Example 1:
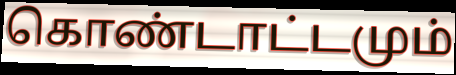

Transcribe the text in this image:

கொண்டாட்டமும்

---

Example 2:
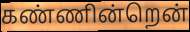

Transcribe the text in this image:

கண்ணின்றென்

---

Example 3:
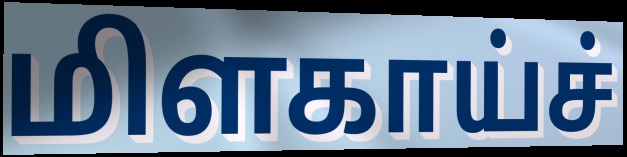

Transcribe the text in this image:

மிளகாய்ச்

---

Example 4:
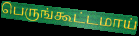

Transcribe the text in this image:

பெருங்கூட்டமாய்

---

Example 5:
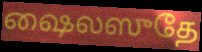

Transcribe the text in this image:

ஷைலஸுதே